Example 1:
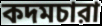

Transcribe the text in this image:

কদমচারা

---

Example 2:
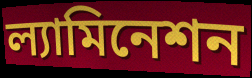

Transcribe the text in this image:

ল্যামিনেশন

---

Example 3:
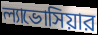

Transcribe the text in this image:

ল্যাভোসিয়ার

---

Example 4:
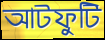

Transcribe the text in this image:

আটফুটি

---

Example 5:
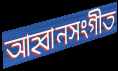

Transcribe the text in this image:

আহ্বানসংগীত